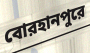
বোরহানপুরে